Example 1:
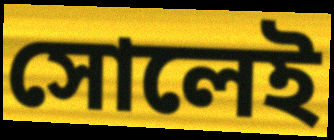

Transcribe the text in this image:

সোলেই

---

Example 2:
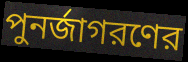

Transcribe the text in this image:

পুনর্জাগরণের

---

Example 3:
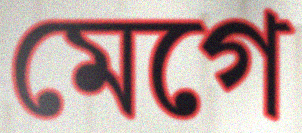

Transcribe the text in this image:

মেগে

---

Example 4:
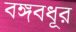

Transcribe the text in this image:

বঙ্গবধূর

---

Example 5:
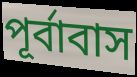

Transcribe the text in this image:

পূর্বাবাস